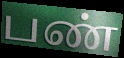
பண்